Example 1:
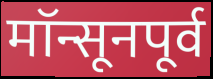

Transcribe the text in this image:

मॉन्सूनपूर्व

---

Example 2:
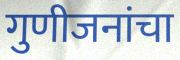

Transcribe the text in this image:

गुणीजनांचा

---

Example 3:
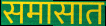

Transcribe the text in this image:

समासात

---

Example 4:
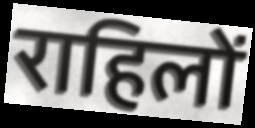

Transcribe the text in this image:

राहिलों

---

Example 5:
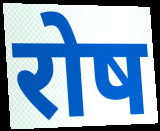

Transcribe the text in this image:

रोष